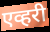
एव्हरी